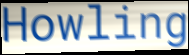
Howling